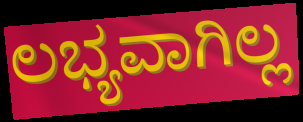
ಲಭ್ಯವಾಗಿಲ್ಲ